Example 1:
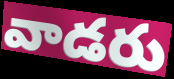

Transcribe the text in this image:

వాడరు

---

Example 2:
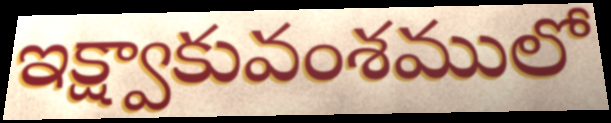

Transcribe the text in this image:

ఇక్ష్వాకువంశములో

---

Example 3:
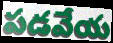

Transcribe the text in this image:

పడవేయ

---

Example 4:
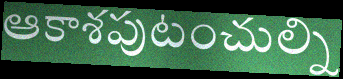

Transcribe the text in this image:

ఆకాశపుటంచుల్ని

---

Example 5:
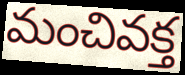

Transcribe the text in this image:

మంచివక్త